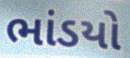
ભાંડયો